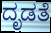
ದೃಡತೆ